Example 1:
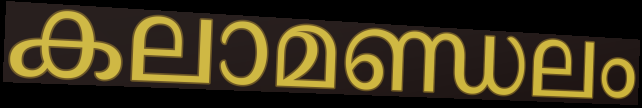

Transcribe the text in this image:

കലാമണ്ഡലം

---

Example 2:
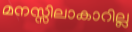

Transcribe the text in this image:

മനസ്സിലാകാറില്ല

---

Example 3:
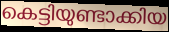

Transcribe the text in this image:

കെട്ടിയുണ്ടാക്കിയ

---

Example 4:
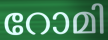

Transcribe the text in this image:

റോമി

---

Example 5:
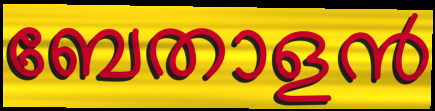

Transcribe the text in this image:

ബേതാളൻ